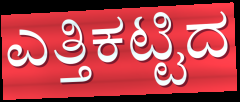
ಎತ್ತಿಕಟ್ಟಿದ